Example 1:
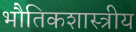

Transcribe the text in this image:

भौतिकशास्त्रीय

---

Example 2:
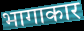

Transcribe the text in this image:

भागाकार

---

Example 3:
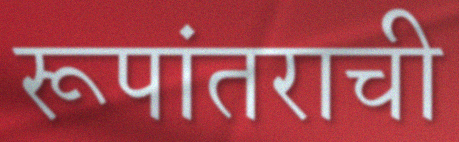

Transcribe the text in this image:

रूपांतराची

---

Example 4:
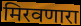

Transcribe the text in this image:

मिरवणारा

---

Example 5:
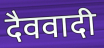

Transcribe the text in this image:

दैववादी